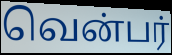
வென்பர்